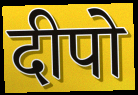
दीपो